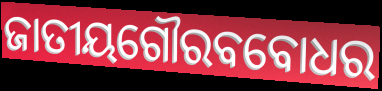
ଜାତୀୟଗୌରବବୋଧର